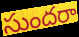
సుందరా